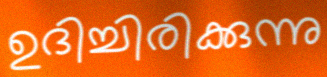
ഉദിച്ചിരിക്കുന്നു